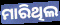
ମାରିଥିଲ